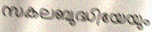
സകലബുദ്ധിയേയും